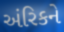
અંરિકને